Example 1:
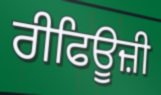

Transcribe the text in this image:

ਰੀਫਿਊਜ਼ੀ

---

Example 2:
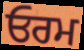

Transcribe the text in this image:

ਓਰਮ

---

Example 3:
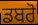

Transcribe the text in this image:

ਡਬਰੋ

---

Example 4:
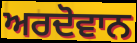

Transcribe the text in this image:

ਅਰਦੋਵਾਨ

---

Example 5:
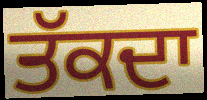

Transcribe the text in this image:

ਤੱਕਦਾ